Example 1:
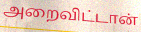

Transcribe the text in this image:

அறைவிட்டான்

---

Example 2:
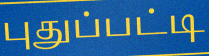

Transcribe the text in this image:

புதுப்பட்டி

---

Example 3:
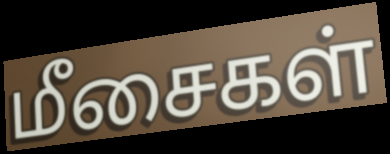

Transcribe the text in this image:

மீசைகள்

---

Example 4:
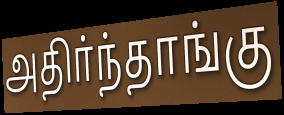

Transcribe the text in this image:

அதிர்ந்தாங்கு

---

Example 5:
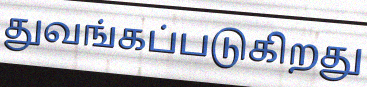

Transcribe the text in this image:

துவங்கப்படுகிறது